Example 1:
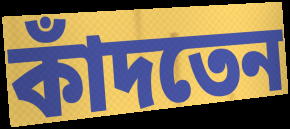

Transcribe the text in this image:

কাঁদতেন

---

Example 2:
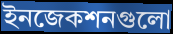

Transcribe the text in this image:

ইনজেকশনগুলো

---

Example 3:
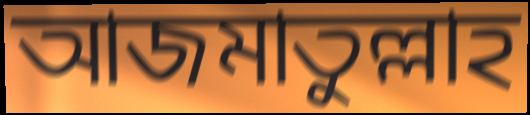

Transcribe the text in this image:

আজমাতুল্লাহ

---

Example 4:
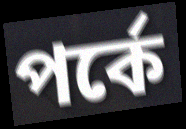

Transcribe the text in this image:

পর্কে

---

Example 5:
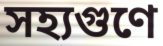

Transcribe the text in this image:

সহ্যগুণে